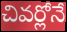
చివర్లోనే